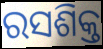
ରସଶିକ୍ତ